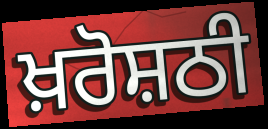
ਖ਼ਰੋਸ਼ਠੀ